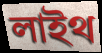
লাইথ